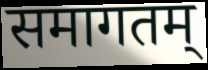
समागतम्